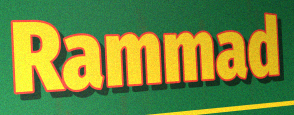
Rammad